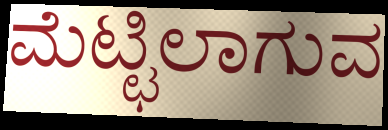
ಮೆಟ್ಟಿಲಾಗುವ